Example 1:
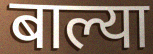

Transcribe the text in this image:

बाल्या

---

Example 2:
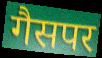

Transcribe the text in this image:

गैसपर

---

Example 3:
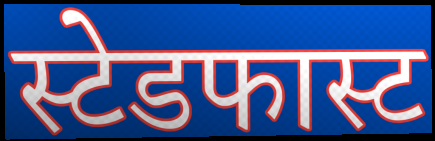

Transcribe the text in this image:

स्टेडफास्ट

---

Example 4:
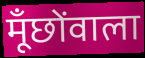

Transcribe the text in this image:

मूँछोंवाला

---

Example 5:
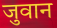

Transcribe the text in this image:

जुवान